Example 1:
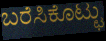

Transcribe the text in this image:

ಬರೆಸಿಕೊಟ್ಟು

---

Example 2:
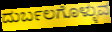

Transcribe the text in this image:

ದುರ್ಬಲಗೊಳ್ಳುವ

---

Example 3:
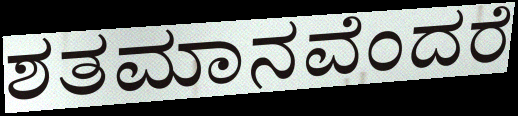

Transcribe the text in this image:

ಶತಮಾನವೆಂದರೆ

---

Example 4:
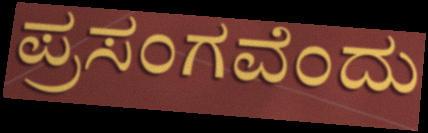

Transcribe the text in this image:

ಪ್ರಸಂಗವೆಂದು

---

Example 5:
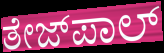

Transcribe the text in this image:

ತೇಜ್‌ಪಾಲ್